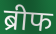
ब्रीफ